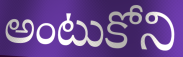
అంటుకోని